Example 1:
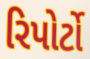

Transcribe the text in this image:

રિપોર્ટો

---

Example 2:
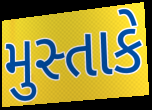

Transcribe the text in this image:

મુસ્તાકે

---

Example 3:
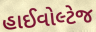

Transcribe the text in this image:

હાઈવોલ્ટેજ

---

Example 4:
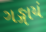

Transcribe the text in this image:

ગઙ્ગાયં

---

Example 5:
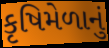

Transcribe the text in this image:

કૃષિમેળાનું